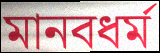
মানবধর্ম